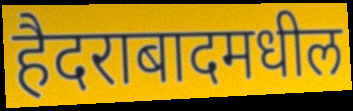
हैदराबादमधील